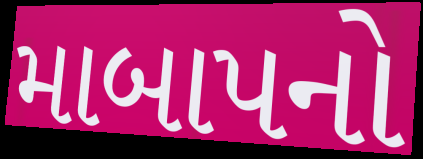
માબાપનો